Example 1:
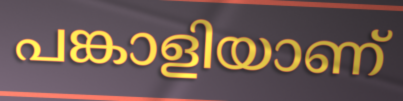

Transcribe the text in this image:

പങ്കാളിയാണ്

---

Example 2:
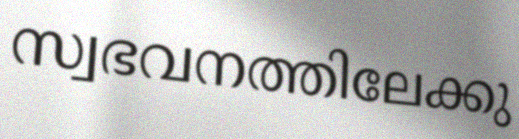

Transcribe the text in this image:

സ്വഭവനത്തിലേക്കു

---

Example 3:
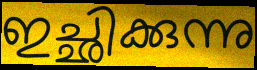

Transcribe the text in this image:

ഇച്ഛിക്കുന്നു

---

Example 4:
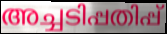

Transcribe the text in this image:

അച്ചടിപ്പതിപ്പ്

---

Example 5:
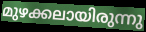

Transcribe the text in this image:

മുഴക്കലായിരുന്നു